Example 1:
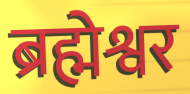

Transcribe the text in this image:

ब्रह्मेश्वर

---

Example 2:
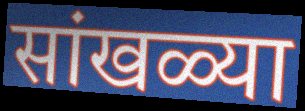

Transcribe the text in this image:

सांखळ्या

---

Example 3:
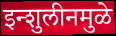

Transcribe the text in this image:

इन्शुलीनमुळे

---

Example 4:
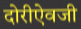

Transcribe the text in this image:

दोरीऐवजी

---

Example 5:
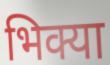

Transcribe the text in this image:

भिक्या